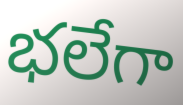
భలేగా